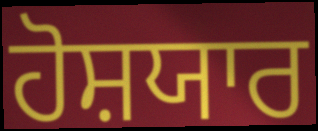
ਹੋਸ਼ਯਾਰ